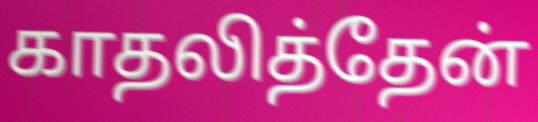
காதலித்தேன்